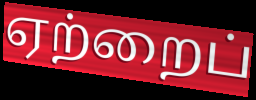
ஏற்றைப்